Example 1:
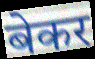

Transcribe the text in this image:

बेकर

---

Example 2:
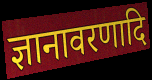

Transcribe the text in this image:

ज्ञानावरणादि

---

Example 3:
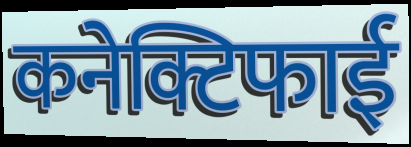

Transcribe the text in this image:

कनेक्टिफाई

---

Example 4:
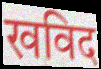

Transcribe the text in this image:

खविद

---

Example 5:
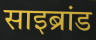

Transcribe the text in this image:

साइब्रांड